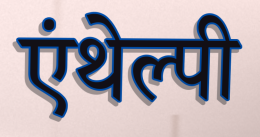
एंथेल्पी